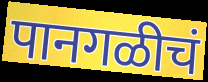
पानगळीचं